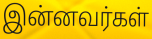
இன்னவர்கள்